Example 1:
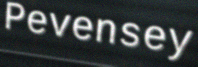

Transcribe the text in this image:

Pevensey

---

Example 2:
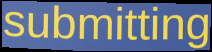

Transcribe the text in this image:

submitting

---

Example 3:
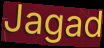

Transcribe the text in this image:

Jagad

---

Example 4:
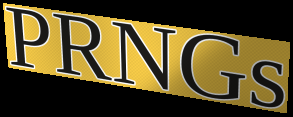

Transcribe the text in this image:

PRNGs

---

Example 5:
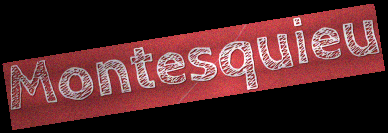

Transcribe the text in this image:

Montesquieu